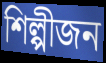
শিল্পীজন